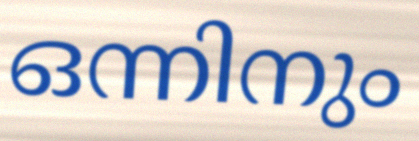
ഒന്നിനും